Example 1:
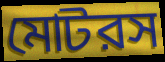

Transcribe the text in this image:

মোটরস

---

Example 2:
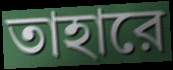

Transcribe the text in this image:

তাহারে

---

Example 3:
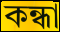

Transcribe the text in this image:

কন্ধা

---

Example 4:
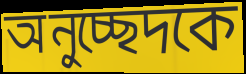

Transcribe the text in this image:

অনুচ্ছেদকে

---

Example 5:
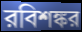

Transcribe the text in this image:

রবিশঙ্কর